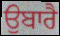
ਉਬਾਰੈ